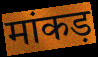
मांकड़